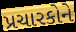
પ્રચારકોને